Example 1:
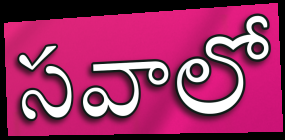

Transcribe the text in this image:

సవాలో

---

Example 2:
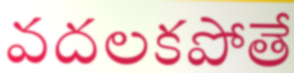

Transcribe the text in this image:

వదలకపోతే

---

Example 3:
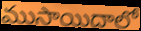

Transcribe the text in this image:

ముసాయిదాలో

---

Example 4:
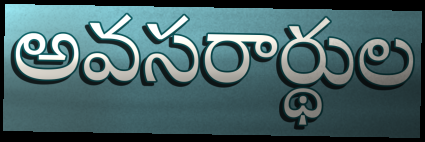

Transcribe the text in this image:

అవసరార్థుల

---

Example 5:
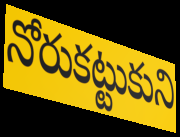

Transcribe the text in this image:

నోరుకట్టుకుని